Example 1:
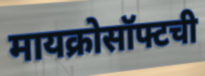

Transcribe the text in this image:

मायक्रोसॉफ्टची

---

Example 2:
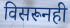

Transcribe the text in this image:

विसरूनही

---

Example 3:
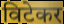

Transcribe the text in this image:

विटेकर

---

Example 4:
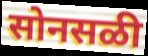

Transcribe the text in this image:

सोनसळी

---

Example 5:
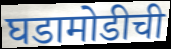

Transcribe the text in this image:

घडामोडीची